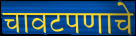
चावटपणाचे